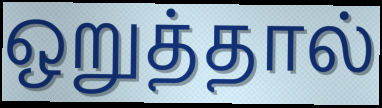
ஒறுத்தால்